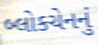
બ્લોકચેનનું